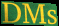
DMs